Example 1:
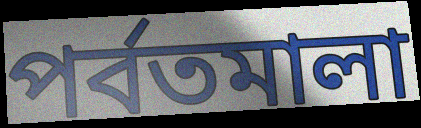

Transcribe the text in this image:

পর্বতমালা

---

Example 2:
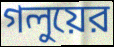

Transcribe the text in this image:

গলুয়ের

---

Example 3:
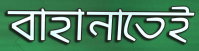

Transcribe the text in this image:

বাহানাতেই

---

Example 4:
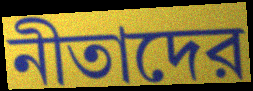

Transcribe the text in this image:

নীতাদের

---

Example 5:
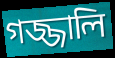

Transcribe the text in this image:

গজ্জালি